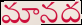
మానద